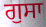
ਗੁਸਾ